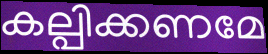
കല്പിക്കണമേ